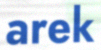
arek